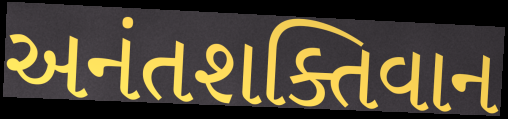
અનંતશક્તિવાન